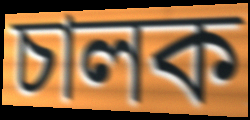
চালক